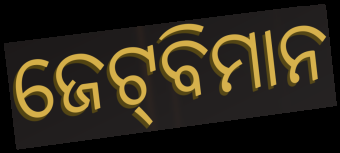
ଜେଟ୍‌ବିମାନ